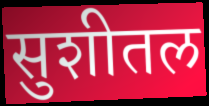
सुशीतल